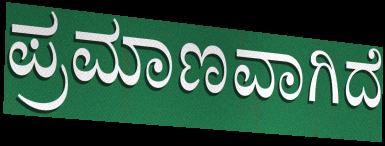
ಪ್ರಮಾಣವಾಗಿದೆ